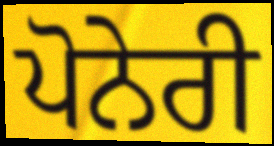
ਪੋਨੇਰੀ